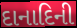
દાનાદિની